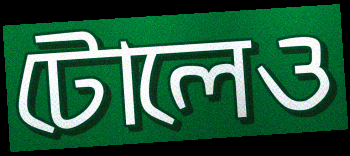
টোলেও